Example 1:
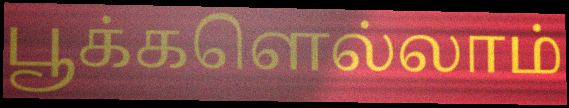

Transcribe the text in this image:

பூக்களெல்லாம்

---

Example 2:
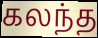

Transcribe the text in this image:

கலந்த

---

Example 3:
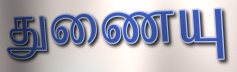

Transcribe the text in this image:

துணையு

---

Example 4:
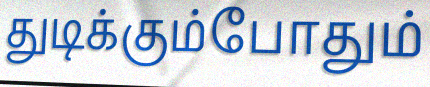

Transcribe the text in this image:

துடிக்கும்போதும்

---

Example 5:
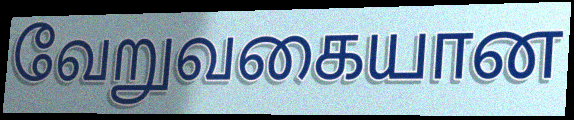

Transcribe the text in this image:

வேறுவகையான